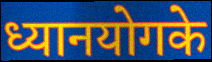
ध्यानयोगके